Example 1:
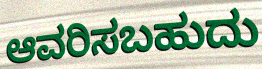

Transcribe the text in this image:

ಆವರಿಸಬಹುದು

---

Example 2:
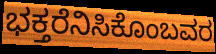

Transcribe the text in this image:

ಭಕ್ತರೆನಿಸಿಕೊಂಬವರ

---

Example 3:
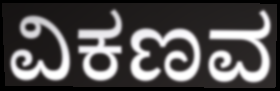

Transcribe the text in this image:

ವಿಕಣವ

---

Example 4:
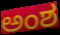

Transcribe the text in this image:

ಅಂಶ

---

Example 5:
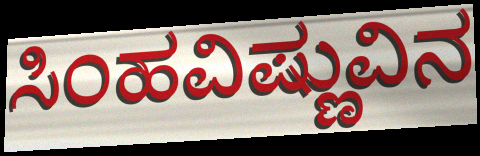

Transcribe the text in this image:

ಸಿಂಹವಿಷ್ಣುವಿನ